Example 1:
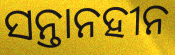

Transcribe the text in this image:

ସନ୍ତାନହୀନ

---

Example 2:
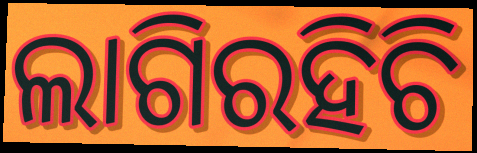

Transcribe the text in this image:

ଲାଗିରହିଚି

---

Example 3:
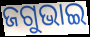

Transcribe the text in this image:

ଜଗୁଭାଇ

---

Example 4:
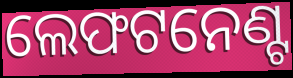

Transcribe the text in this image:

ଲେଫଟନେଣ୍ଟ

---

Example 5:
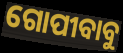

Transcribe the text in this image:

ଗୋପୀବାବୁ